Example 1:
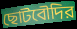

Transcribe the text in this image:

ছোটবৌদির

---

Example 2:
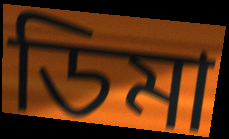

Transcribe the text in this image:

ডিমা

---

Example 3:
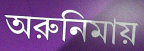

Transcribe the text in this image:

অরুনিমায়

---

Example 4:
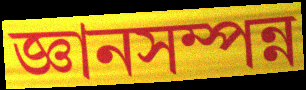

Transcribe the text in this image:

জ্ঞানসম্পন্ন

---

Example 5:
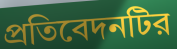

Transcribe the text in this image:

প্রতিবেদনটির